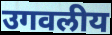
उगवलीय